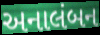
અનાલંબન